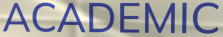
ACADEMIC